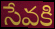
సేవకి